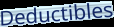
Deductibles